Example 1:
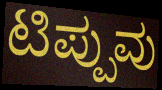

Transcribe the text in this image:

ಟಿಪ್ಪುವು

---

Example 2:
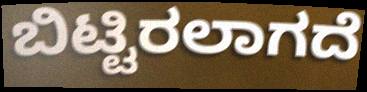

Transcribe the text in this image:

ಬಿಟ್ಟಿರಲಾಗದೆ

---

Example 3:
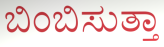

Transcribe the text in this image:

ಬಿಂಬಿಸುತ್ತಾ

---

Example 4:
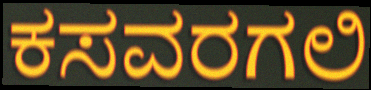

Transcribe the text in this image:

ಕಸವರಗಲಿ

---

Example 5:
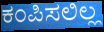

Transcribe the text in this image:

ಕಂಪಿಸಲಿಲ್ಲ